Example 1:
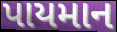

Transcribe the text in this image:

પાયમાન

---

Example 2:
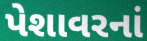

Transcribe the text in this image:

પેશાવરનાં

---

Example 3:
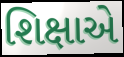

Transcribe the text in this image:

શિક્ષાએ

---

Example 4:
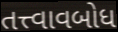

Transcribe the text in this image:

તત્ત્વાવબોધ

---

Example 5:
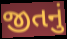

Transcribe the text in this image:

જીતનું